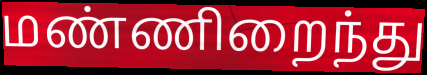
மண்ணிறைந்து